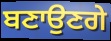
ਬਣਾਉਣਗੇ